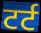
टर्ट